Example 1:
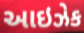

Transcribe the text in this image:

આઇઝેક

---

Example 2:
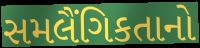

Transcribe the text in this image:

સમલૈંગિકતાનો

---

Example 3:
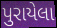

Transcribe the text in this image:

પુરાયેલા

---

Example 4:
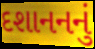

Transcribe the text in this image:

દશાનનનું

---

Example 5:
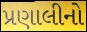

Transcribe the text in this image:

પ્રણાલીનો